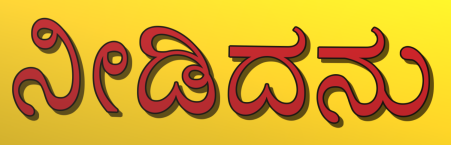
ನೀಡಿದನು